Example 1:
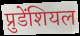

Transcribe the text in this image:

प्रुडेंशियल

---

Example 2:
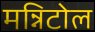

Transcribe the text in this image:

मन्निटोल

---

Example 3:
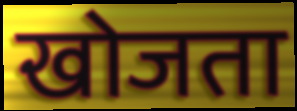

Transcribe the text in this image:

खोजता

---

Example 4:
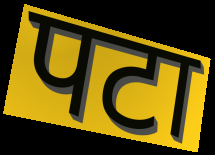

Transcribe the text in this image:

पटा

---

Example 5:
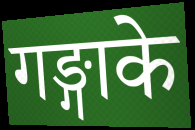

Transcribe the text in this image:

गङ्गाके